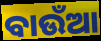
ବାଉଁଆ